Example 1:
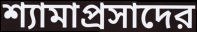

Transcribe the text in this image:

শ্যামাপ্রসাদের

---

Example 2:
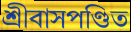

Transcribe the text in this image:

শ্রীবাসপণ্ডিত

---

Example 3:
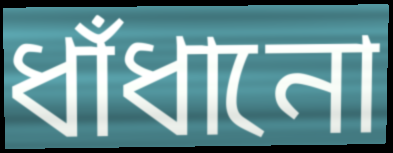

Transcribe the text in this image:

ধাঁধানো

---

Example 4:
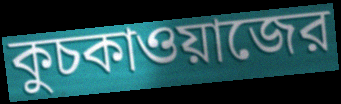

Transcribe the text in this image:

কুচকাওয়াজের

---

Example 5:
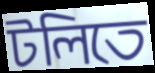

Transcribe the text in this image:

টলিতে